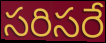
సరిసరే